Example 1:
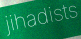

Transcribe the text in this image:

jihadists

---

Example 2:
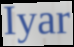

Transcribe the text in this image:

Iyar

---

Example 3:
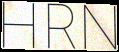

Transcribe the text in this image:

HRN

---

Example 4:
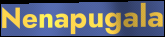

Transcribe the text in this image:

Nenapugala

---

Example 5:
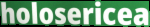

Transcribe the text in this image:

holosericea